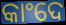
କାଂଦେ